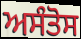
ਅਸੰਤੋਸ